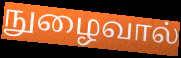
நுழைவால்